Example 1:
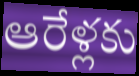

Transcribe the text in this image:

ఆరేళ్లకు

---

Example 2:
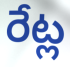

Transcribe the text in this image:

రేట్ల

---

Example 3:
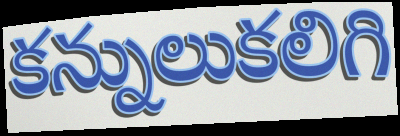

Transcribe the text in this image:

కన్నులుకలిగి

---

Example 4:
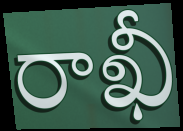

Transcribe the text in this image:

రాఖీ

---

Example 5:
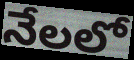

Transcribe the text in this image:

నేలలో